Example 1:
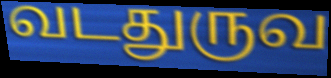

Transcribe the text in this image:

வடதுருவ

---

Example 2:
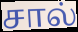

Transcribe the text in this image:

சால்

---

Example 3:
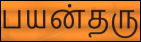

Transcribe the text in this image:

பயன்தரு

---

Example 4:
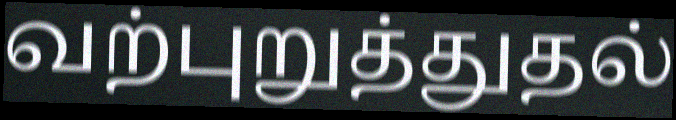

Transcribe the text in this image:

வற்புறுத்துதல்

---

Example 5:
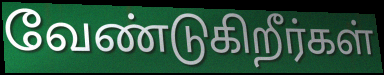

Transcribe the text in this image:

வேண்டுகிறீர்கள்